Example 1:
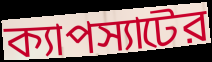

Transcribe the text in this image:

ক্যাপস্যাটের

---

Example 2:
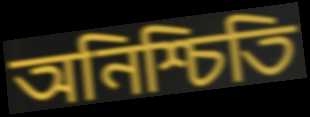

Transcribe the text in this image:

অনিশ্চিতি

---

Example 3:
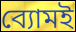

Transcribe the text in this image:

ব্যোমই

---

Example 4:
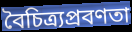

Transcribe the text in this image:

বৈচিত্র্যপ্রবণতা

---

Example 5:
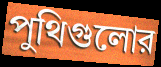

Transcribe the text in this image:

পুথিগুলোর